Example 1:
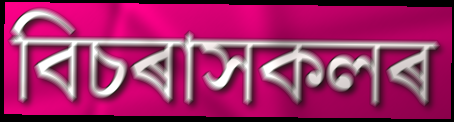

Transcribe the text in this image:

বিচৰাসকলৰ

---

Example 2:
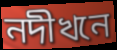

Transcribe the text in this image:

নদীখনে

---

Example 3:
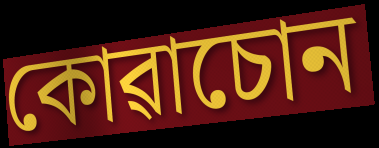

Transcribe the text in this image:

কোৱাচোন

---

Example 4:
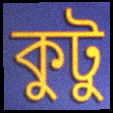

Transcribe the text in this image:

কুটু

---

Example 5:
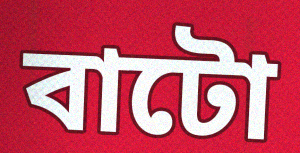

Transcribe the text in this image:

বাটো